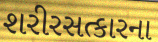
શરીરસત્કારના